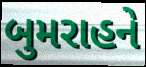
બુમરાહને